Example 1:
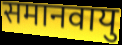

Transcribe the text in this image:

समानवायु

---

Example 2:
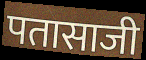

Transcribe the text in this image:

पतासाजी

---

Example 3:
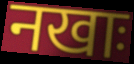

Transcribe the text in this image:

नखाः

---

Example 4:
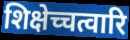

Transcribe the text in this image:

शिक्षेच्चत्वारि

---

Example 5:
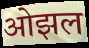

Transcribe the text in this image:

ओझल